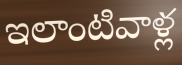
ఇలాంటివాళ్ల